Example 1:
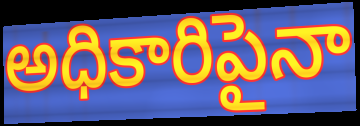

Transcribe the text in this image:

అధికారిపైనా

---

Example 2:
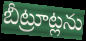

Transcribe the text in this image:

బీట్రూట్లను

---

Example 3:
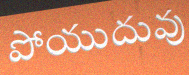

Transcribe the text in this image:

పోయుదువు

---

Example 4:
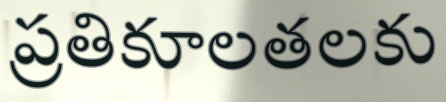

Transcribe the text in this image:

ప్రతికూలతలకు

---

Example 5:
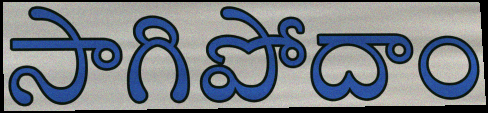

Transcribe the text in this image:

సాగిపోదాం